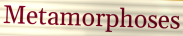
Metamorphoses